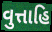
વુત્તાહિ